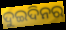
ଦୁଇଦିନର